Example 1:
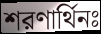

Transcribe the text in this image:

শরণার্থিনঃ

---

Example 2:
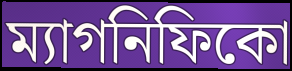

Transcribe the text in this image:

ম্যাগনিফিকো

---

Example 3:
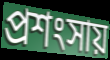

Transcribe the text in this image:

প্রশংসায়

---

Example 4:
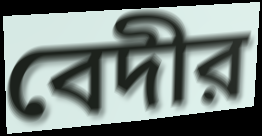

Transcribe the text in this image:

বেদীর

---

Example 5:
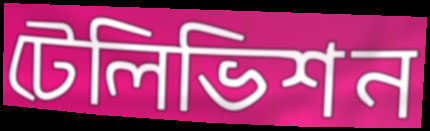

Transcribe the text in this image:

টেলিভিশন